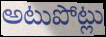
అటుపోట్లు